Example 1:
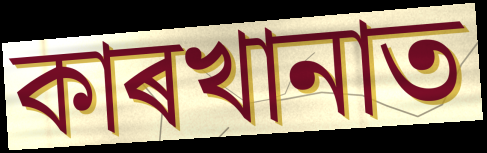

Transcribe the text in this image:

কাৰখানাত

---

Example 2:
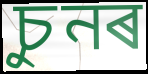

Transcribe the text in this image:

চুনৰ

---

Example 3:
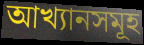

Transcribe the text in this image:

আখ্যানসমূহ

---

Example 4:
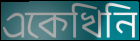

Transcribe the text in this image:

একেখিনি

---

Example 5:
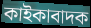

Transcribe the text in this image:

কাইকাবাদক